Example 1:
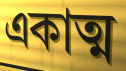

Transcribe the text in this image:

একাত্ম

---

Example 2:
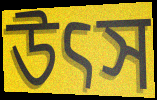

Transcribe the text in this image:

উৎস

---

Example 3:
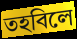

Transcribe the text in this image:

তহবিলে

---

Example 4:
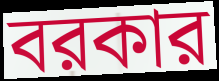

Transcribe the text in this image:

বরকার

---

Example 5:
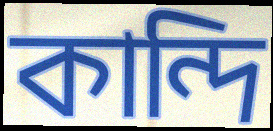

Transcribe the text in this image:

কান্দি